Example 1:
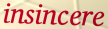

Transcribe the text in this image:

insincere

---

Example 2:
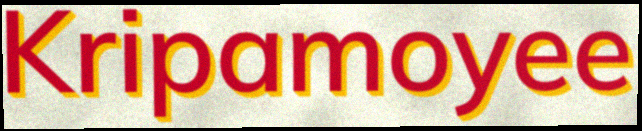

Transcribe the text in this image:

Kripamoyee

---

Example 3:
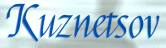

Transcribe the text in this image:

Kuznetsov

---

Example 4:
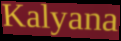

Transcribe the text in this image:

Kalyana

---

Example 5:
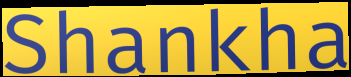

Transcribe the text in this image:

Shankha